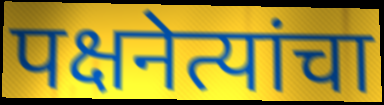
पक्षनेत्यांचा